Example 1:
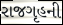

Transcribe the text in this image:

રાજગૃહની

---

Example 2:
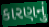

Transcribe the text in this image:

કારણનું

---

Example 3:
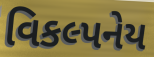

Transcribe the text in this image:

વિકલ્પનેય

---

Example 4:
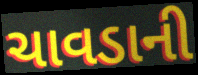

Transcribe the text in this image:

ચાવડાની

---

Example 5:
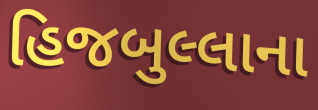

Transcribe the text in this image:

હિજબુલ્લાના